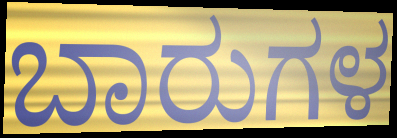
ಬಾರುಗಳ